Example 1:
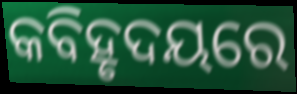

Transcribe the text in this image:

କବିହୃଦୟରେ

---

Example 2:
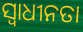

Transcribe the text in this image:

ସ୍ବାଧୀନତା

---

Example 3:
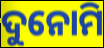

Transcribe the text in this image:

ଦୁନୋମି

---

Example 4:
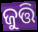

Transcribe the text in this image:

ଜୁତ୍ତି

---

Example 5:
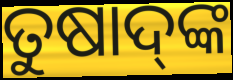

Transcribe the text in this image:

ତୁଷାଦ୍‌ଙ୍କ